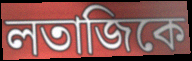
লতাজিকে